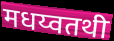
मधय्वतथी